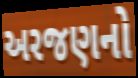
અરજણનો